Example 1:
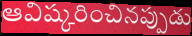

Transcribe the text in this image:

ఆవిష్కరించినప్పుడు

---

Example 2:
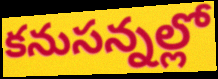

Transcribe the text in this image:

కనుసన్నల్లో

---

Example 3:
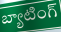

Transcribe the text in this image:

బ్యాటింగ్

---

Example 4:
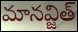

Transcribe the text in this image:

మానవ్జిత్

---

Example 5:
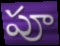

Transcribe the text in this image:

పూ